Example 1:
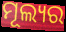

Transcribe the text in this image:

ମୂଲ୍ଯର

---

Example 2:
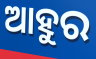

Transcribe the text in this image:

ଆହୁର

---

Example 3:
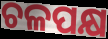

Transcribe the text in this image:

ଚଳପକ୍ଷ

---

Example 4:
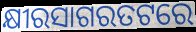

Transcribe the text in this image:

କ୍ଷୀରସାଗରତଟରେ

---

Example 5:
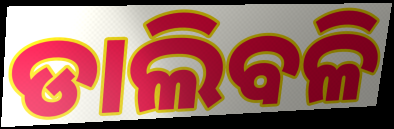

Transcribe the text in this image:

ଡାଲିବଳି